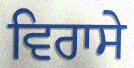
ਵਿਰਾਸੇ